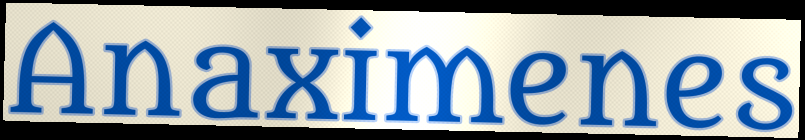
Anaximenes